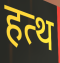
हत्थ